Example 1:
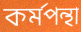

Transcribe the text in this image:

কৰ্মপন্থা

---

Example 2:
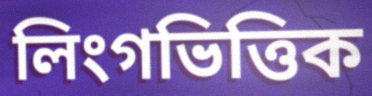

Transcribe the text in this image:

লিংগভিত্তিক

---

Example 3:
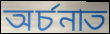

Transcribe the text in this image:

অৰ্চনাত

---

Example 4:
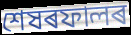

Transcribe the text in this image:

শেষৰফালৰ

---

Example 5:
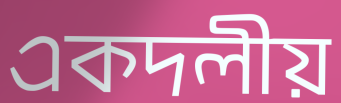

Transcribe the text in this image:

একদলীয়